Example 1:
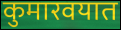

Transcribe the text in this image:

कुमारवयात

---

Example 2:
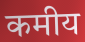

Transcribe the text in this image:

कमीय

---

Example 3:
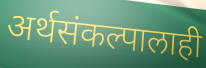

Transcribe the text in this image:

अर्थसंकल्पालाही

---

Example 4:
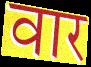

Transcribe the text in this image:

वार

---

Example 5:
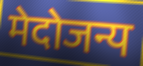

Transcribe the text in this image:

मेदोजन्य